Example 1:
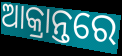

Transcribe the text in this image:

ଆକ୍ରାନ୍ତରେ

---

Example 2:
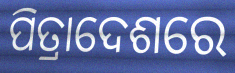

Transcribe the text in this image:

ପିତ୍ରାଦେଶରେ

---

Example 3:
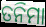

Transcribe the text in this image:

ତନିମା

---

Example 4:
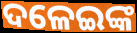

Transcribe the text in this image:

ଦଳେଇଙ୍କ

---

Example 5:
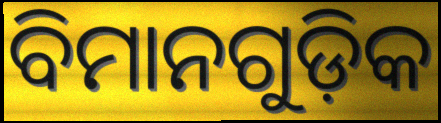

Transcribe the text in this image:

ବିମାନଗୁଡ଼ିକ